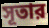
সূতার